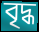
বৃদ্ধ